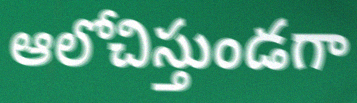
ఆలోచిస్తుండగా